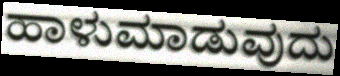
ಹಾಳುಮಾಡುವುದು